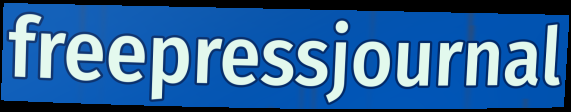
freepressjournal